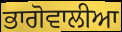
ਭਾਗੋਵਾਲੀਆ